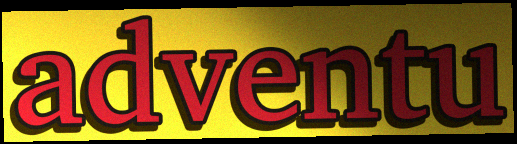
adventu